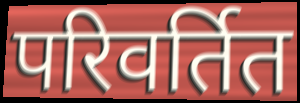
परिवर्तित